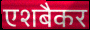
एशबैकर